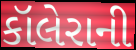
કૉલેરાની